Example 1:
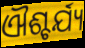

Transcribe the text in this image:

ଐଶ୍ଚର୍ଯ୍ୟ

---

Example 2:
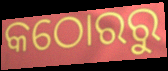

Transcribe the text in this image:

କଠୋରରୁ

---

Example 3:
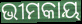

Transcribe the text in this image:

ଭୀମକାୟ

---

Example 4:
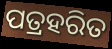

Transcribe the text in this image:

ପତ୍ରହରିତ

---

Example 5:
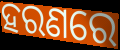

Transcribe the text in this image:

ହରଣରେ